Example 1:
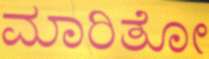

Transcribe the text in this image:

ಮಾರಿತೋ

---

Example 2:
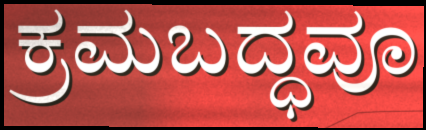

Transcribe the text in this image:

ಕ್ರಮಬದ್ಧವೂ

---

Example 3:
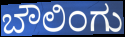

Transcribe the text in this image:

ಬೌಲಿಂಗು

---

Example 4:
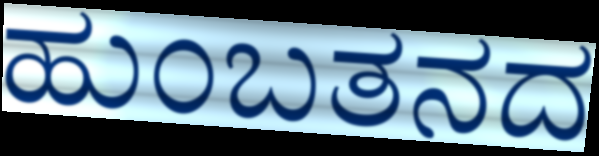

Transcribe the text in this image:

ಹುಂಬತನದ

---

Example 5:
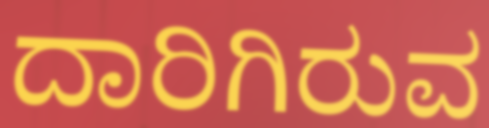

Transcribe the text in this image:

ದಾರಿಗಿರುವ